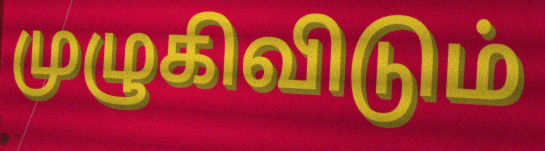
முழுகிவிடும்